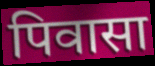
पिवासा